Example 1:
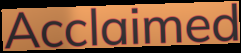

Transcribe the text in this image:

Acclaimed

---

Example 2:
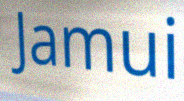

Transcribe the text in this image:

Jamui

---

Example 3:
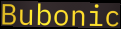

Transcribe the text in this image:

Bubonic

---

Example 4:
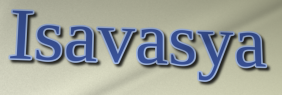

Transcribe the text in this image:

Isavasya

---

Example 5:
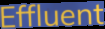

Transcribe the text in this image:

Effluent